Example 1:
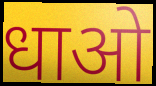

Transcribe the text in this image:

धाओ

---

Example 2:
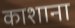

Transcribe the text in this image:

काशाना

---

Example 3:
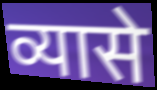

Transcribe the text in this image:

व्यासे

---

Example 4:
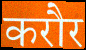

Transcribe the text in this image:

करौर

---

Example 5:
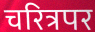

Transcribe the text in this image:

चरित्रपर